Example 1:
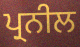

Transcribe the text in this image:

ਪ੍ਰਨੀਲ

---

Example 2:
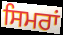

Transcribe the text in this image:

ਸਿਮਰਾਂ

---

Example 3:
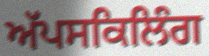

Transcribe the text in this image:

ਅੱਪਸਕਿਲਿੰਗ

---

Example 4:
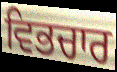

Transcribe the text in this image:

ਵਿਭਚਾਰ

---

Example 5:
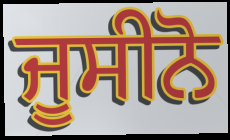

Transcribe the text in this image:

ਜੂਸੀਨੋ